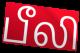
பீலி